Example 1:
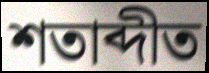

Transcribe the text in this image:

শতাব্দীত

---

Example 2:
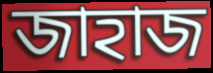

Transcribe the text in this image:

জাহাজ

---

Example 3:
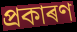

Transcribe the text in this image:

প্ৰকাৰণ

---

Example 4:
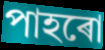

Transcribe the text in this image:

পাহৰো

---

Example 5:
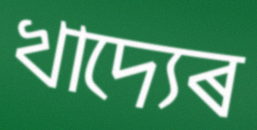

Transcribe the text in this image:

খাদ্যেৰ